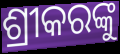
ଶ୍ରୀକରଙ୍କୁ